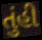
તુંહી